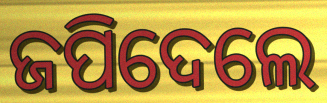
ଜପିଦେଲେ